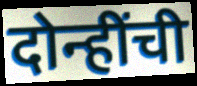
दोन्हींची